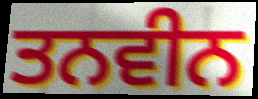
ਤਨਵੀਨ